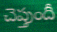
చెప్తుందీ